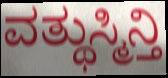
ವತ್ಥುಸ್ಮಿನ್ತಿ